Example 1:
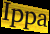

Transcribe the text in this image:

Ippa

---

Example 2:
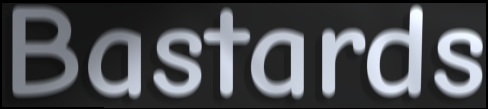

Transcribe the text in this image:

Bastards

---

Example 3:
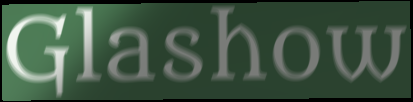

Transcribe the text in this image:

Glashow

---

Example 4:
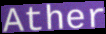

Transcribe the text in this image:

Ather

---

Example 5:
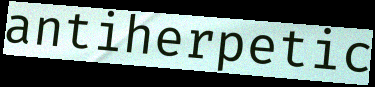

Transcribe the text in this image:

antiherpetic